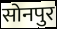
सोनपुर